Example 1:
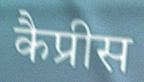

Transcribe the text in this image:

कैप्रीस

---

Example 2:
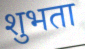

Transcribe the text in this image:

शुभता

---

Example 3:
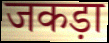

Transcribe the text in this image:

जकड़ा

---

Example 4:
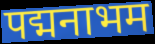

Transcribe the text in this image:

पद्मनाभम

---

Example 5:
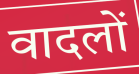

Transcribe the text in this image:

वादलों